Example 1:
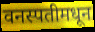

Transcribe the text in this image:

वनस्पतीमधून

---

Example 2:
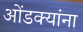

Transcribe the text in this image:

ओंडक्यांना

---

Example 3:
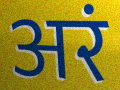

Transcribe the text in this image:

अरं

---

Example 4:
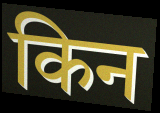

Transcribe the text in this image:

किन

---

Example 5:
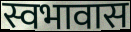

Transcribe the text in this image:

स्वभावास